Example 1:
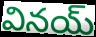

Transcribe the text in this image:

వినయ్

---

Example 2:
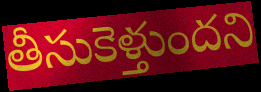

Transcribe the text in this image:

తీసుకెళ్తుందని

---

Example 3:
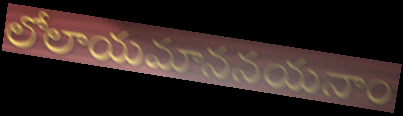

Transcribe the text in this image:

లోలాయమాననయనాం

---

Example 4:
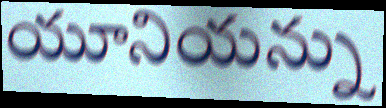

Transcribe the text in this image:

యూనియన్ను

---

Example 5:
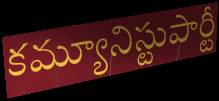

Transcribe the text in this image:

కమ్యూనిస్టుపార్టీ